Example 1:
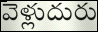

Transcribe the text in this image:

వెళ్లుదురు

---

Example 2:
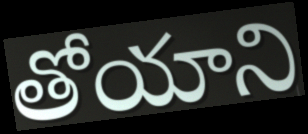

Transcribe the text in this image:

తోయాని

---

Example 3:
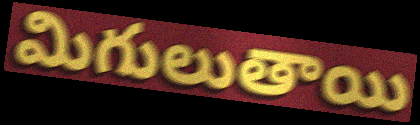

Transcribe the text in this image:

మిగులుతాయి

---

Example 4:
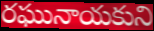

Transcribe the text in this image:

రఘునాయకుని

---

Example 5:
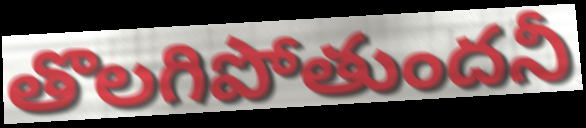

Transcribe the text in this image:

తొలగిపోతుందనీ